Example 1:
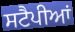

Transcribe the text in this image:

ਸਟੈਪੀਆਂ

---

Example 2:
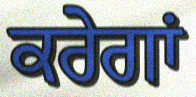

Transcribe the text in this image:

ਕਰੇਗਾਂ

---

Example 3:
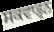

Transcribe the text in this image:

ਸਕਵਾਡ੍ਰਨ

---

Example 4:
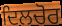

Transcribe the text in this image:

ਦਿਲਚੋਰ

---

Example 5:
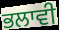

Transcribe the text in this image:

ਭਲਾਵੀ